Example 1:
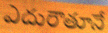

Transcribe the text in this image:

ఎదురౌతూనే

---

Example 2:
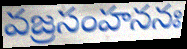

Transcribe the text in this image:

వజ్రసంహననః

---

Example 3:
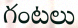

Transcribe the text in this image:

గంటలు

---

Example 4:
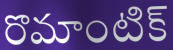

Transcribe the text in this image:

రొమాంటిక్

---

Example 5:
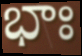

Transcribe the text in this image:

భాః